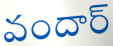
వందార్